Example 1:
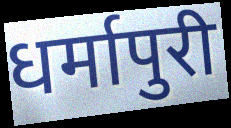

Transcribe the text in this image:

धर्मापुरी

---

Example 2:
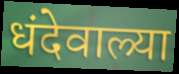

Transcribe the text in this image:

धंदेवाल्या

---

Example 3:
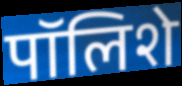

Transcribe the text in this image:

पॉलिशे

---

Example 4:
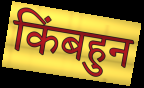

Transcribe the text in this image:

किंबहुन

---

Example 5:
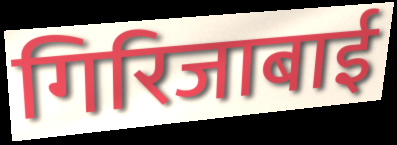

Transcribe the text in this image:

गिरिजाबाई